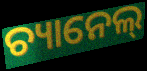
ଚ୍ୟାନେଲ୍